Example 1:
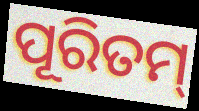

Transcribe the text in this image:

ପୂରିତମ୍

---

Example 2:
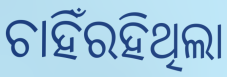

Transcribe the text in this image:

ଚାହିଁରହିଥିଲା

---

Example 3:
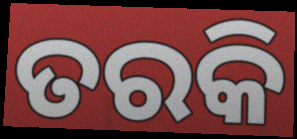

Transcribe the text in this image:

ତରକି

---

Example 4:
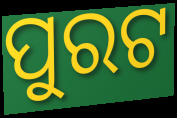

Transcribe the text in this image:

ପୁରଟ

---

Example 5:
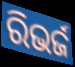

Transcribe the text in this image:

ରିଭର୍ଜ